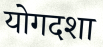
योगदशा